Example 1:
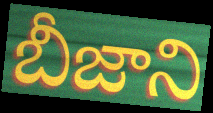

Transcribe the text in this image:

బీజాని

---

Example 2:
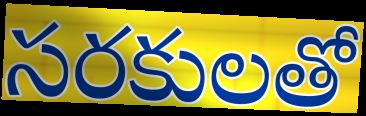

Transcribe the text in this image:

సరకులతో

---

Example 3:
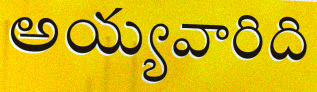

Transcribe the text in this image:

అయ్యవారిది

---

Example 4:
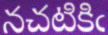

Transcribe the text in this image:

నచటికిఁ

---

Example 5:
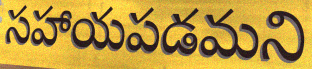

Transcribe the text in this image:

సహాయపడమని